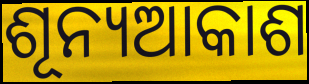
ଶୂନ୍ୟଆକାଶ